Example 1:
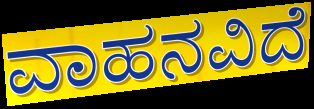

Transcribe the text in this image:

ವಾಹನವಿದೆ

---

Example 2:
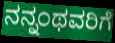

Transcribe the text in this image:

ನನ್ನಂಥವರಿಗೆ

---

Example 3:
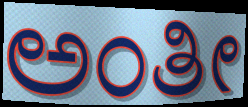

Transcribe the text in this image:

ಅಂತೀ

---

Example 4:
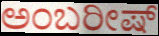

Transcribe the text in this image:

ಅಂಬರೀಷ್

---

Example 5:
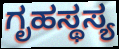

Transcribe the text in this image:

ಗೃಹಸ್ಥಸ್ಯ